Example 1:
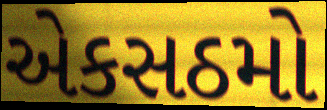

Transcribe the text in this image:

એકસઠમો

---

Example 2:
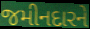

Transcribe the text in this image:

જમીનદારને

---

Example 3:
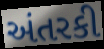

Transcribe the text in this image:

અંતરકી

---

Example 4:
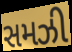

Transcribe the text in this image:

સમઝી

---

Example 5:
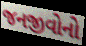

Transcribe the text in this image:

જનજીવોનો